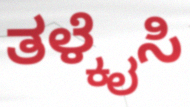
ತಳ್ಕೈಸಿ